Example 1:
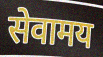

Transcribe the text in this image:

सेवामय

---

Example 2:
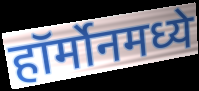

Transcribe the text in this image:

हॉर्मोनमध्ये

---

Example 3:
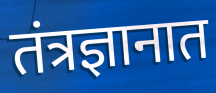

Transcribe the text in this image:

तंत्रज्ञानात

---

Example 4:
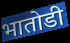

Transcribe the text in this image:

भातोडी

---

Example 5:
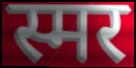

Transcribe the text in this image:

स्मर